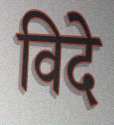
विदे